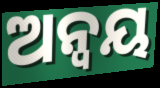
ଅନ୍ଵୟ